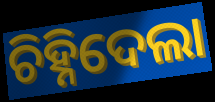
ଚିହ୍ନିଦେଲା